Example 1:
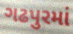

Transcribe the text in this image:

ગઢપુરમાં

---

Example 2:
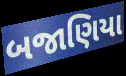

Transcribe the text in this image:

બજાણિયા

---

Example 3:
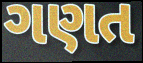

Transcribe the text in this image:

ગણત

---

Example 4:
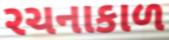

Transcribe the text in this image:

રચનાકાળ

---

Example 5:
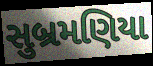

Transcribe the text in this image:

સુબ્રમણિયા